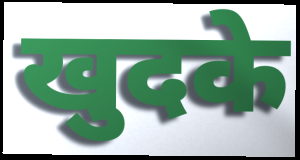
खुदके